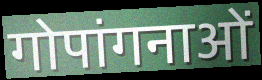
गोपांगनाओं